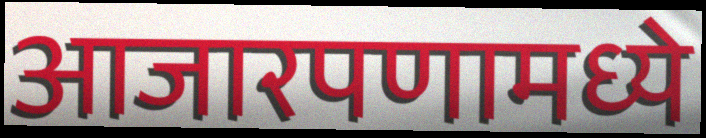
आजारपणामध्ये